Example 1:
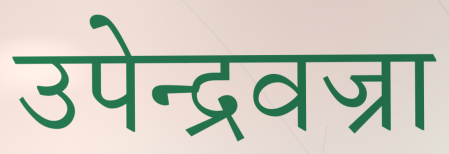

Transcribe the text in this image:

उपेन्द्रवज्रा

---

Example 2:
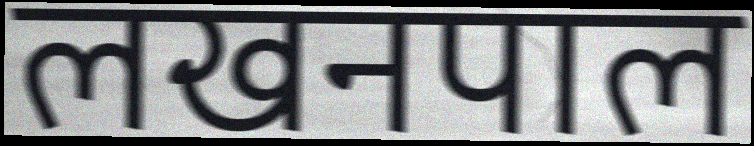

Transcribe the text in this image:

लखनपाल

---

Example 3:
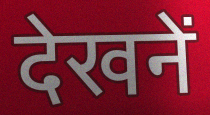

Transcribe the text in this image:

देखनें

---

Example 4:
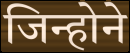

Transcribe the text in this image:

जिन्‍होने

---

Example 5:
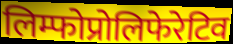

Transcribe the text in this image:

लिम्फोप्रोलिफेरेटिव